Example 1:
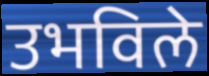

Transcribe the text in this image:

उभविले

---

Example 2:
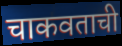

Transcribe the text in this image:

चाकवताची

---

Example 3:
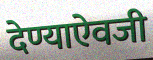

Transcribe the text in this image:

देण्याऐवजी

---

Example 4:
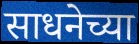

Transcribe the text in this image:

साधनेच्या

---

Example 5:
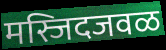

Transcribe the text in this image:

मस्जिदजवळ